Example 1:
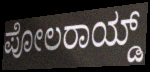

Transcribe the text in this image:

ಪೋಲರಾಯ್ಡ್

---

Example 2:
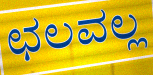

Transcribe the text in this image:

ಛಲವಲ್ಲ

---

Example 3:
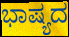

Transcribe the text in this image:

ಭಾಷ್ಯದ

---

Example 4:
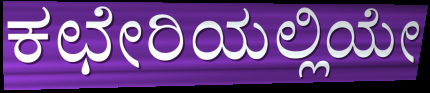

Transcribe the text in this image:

ಕಛೇರಿಯಲ್ಲಿಯೇ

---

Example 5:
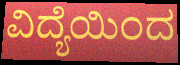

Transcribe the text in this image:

ವಿದ್ಯೆಯಿಂದ